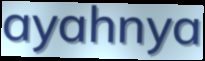
ayahnya